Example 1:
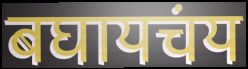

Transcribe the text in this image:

बघायचंय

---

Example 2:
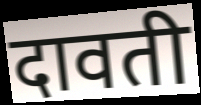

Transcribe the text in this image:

दावती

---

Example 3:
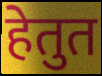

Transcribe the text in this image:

हेतुत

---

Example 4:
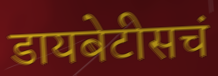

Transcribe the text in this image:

डायबेटीसचं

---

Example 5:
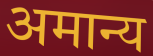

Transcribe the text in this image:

अमान्य